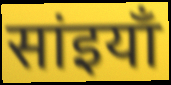
सांइयाँ